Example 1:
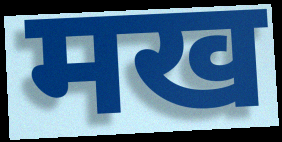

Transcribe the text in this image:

मख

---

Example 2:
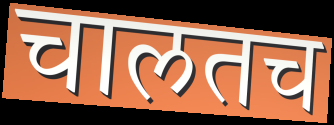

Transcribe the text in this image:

चालतच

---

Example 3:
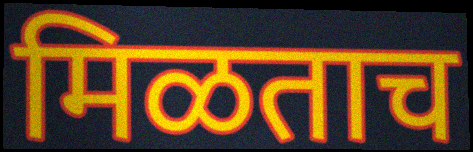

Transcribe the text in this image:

मिळताच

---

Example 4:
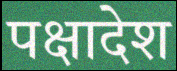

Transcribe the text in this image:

पक्षादेश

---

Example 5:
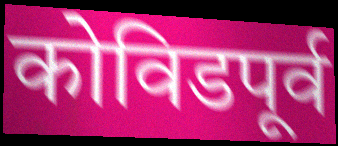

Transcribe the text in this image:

कोविडपूर्व